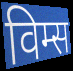
विम्स